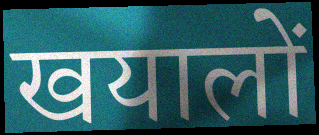
खयालों